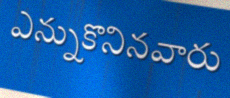
ఎన్నుకొనినవారు